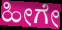
ಹೀಗೇ